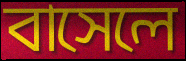
বাসেলে